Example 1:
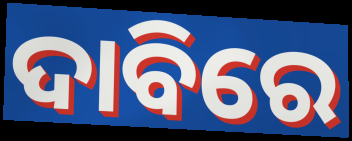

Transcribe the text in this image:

ଦାବିରେ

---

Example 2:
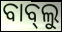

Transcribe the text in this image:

ବାବ୍‍ଲୁ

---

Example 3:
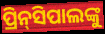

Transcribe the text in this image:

ପ୍ରିନ୍‌ସିପାଲଙ୍କୁ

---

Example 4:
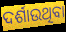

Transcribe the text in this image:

ଦର୍ଶାଉଥିବା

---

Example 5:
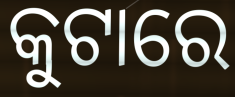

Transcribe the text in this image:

କୁଟାରେ